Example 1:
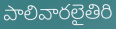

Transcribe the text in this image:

పాలివారలైతిరి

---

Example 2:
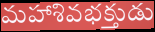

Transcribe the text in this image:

మహాశివభక్తుడు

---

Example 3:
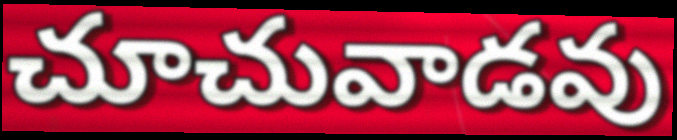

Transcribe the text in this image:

చూచువాడవు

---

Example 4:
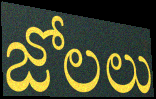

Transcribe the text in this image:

జోలలు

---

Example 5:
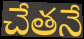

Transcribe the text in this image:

చేతనే